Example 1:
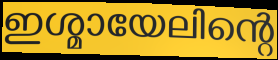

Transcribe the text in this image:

ഇശ്മായേലിന്റെ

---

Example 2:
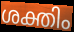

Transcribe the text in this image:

ശക്തിം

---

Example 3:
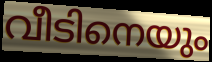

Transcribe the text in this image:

വീടിനെയും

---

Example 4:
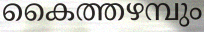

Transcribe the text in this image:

കൈത്തഴമ്പും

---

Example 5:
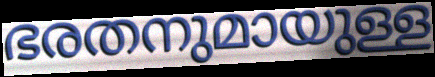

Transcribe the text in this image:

ഭരതനുമായുള്ള